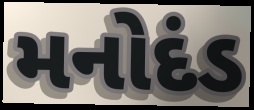
મનોદંડ